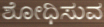
ಶೋಧಿಸುವ